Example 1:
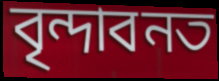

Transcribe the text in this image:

বৃন্দাবনত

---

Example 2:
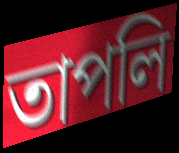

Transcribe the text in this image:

তাপলি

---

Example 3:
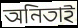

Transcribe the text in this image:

অনিতাই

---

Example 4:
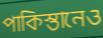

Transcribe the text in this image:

পাকিস্তানেও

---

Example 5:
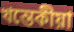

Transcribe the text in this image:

খন্তেকীয়া